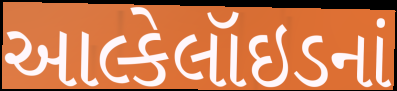
આલ્કેલૉઇડનાં